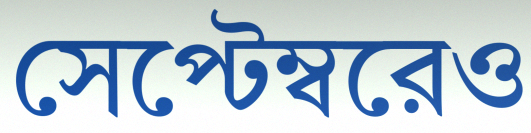
সেপ্টেম্বরেও